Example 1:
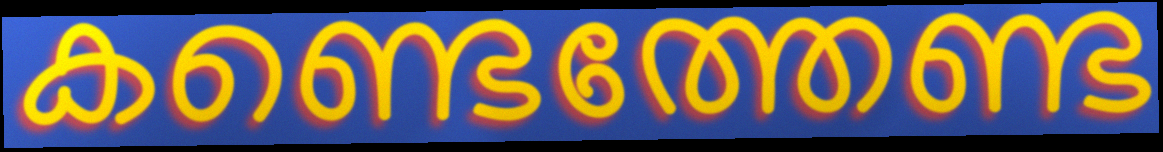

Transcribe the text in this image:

കണ്ടെത്തേണ്ട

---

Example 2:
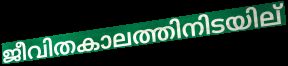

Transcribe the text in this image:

ജീവിതകാലത്തിനിടയില്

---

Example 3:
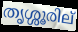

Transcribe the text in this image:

തൃശ്ശൂരില്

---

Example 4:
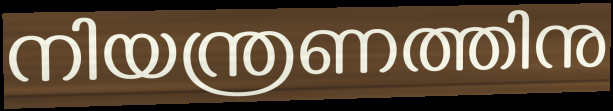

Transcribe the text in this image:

നിയന്ത്രണത്തിനു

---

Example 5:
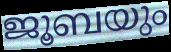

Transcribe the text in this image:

ജൂബയും